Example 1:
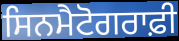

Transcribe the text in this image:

ਸਿਨਮੈਟੋਗਰਾਫ਼ੀ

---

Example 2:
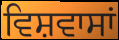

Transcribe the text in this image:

ਵਿਸ਼ਵਾਸਾਂ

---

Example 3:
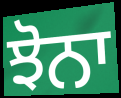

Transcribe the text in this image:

ਝੋਨਾ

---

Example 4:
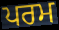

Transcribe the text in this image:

ਪਰਮ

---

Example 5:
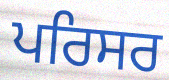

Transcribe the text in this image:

ਪਰਿਸਰ